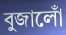
বুজালোঁ